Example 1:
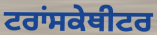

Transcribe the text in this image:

ਟਰਾਂਸਕੇਥੀਟਰ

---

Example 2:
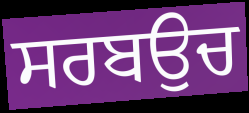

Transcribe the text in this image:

ਸਰਬਉਚ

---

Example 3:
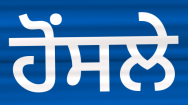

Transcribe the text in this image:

ਹੋਂਸਲੇ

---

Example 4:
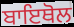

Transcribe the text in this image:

ਬਾਇਥੋਲ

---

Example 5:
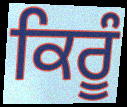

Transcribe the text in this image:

ਕਿਰੂੰ